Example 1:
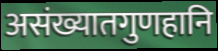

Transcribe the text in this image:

असंख्यातगुणहानि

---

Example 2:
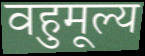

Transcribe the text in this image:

वहुमूल्य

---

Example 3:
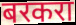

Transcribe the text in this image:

बरकरा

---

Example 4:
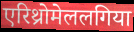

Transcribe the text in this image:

एरिथ्रोमेललगिया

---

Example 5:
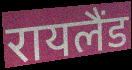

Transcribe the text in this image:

रायलैंड